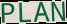
PLAN